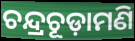
ଚନ୍ଦ୍ରଚୂଡ଼ାମଣି